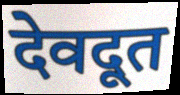
देवदूत